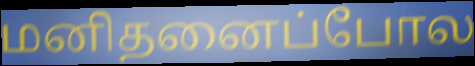
மனிதனைப்போல